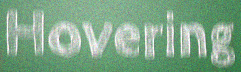
Hovering